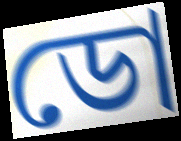
ডো